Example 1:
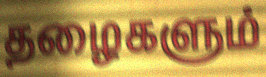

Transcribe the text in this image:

தழைகளும்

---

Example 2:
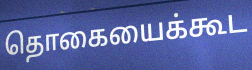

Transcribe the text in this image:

தொகையைக்கூட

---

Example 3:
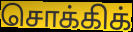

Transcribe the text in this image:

சொக்கிக்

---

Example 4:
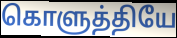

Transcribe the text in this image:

கொளுத்தியே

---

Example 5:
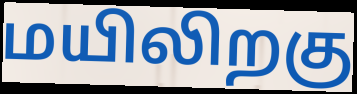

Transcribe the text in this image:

மயிலிறகு